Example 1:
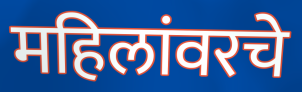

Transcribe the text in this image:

महिलांवरचे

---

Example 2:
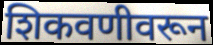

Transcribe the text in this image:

शिकवणीवरून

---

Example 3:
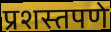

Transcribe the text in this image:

प्रशस्तपणे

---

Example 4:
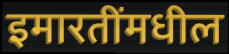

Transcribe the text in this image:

इमारतींमधील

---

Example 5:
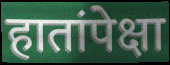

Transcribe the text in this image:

हातांपेक्षा